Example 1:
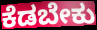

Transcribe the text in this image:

ಕೆಡಬೇಕು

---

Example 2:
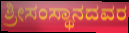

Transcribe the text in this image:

ಶ್ರೀಸಂಸ್ಥಾನದವರ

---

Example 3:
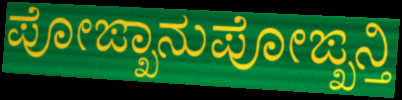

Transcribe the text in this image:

ಪೋಙ್ಖಾನುಪೋಙ್ಖನ್ತಿ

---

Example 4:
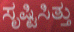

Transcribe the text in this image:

ಸೃಷ್ಟಿಸಿತ್ತು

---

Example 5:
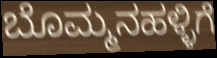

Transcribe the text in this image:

ಬೊಮ್ಮನಹಳ್ಳಿಗೆ